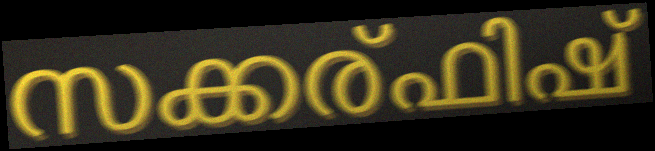
സക്കര്ഫിഷ്